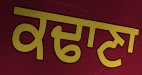
ਕਢਾਣਾ